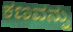
ಕಣವನ್ನು